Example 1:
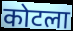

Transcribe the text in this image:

कोटला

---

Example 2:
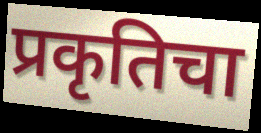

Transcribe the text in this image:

प्रकृतिचा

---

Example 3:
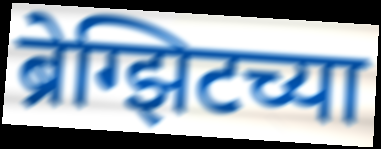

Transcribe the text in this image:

ब्रेग्झिटच्या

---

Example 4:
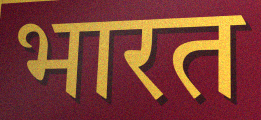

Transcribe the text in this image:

भारत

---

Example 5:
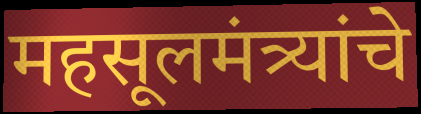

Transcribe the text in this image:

महसूलमंत्र्यांचे